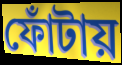
ফোঁটায়